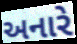
અનારે